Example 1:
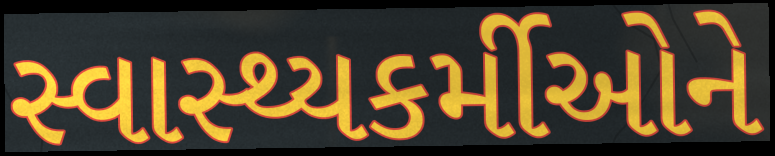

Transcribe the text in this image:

સ્વાસ્થ્યકર્મીઓને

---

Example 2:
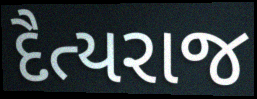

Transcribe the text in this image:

દૈત્યરાજ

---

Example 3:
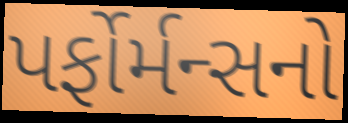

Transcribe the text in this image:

પર્ફોર્મન્સનો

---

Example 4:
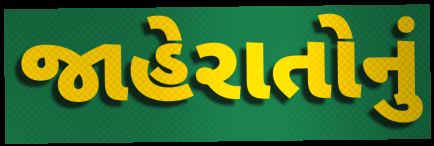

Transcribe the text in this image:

જાહેરાતોનું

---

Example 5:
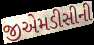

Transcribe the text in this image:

જીએમડીસીની